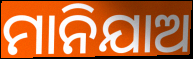
ମାନିଯାଅ